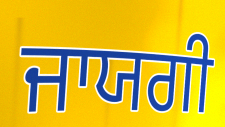
ਜਾਯਗੀ